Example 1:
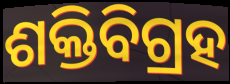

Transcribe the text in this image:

ଶକ୍ତିବିଗ୍ରହ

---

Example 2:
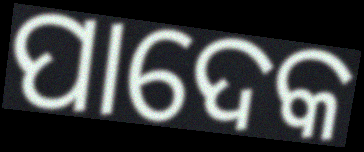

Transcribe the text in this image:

ପାଦେକ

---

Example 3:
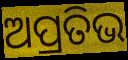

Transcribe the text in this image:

ଅପ୍ରତିଭ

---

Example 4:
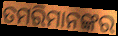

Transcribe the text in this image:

ତମରିମାନଙ୍କର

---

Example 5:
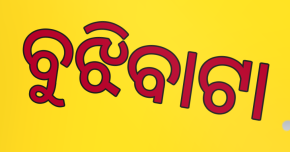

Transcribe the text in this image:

ବୁଝିବାଟା